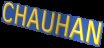
CHAUHAN